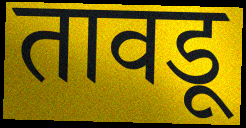
तावडू